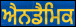
ਐਨਡੈਮਿਕ